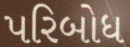
પરિબોધ